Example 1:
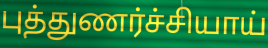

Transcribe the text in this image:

புத்துணர்ச்சியாய்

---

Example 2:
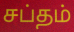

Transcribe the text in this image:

சப்தம்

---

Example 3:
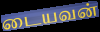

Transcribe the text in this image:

டையவன்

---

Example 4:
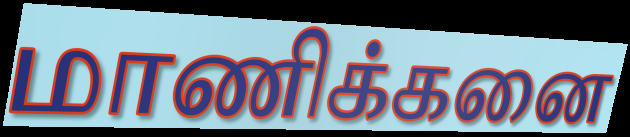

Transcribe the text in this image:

மாணிக்கனை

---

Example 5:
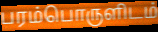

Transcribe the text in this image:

பரம்பொருளிடம்